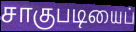
சாகுபடியைப்